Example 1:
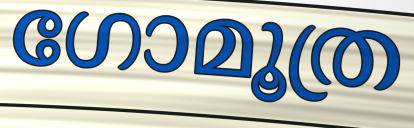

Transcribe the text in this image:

ഗോമൂത്ര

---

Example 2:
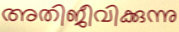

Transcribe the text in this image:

അതിജീവിക്കുന്നു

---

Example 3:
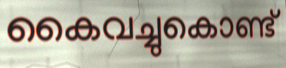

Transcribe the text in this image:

കൈവച്ചുകൊണ്ട്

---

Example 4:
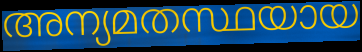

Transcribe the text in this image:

അന്യമതസ്ഥയായ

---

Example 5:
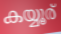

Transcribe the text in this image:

കയ്യൂര്